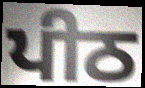
ਪੀਠ